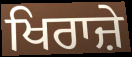
ਖਿਰਾਜ਼ੇ